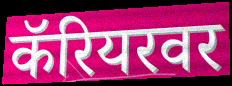
कॅरियरवर